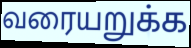
வரையறுக்க